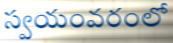
స్వయంవరంలో